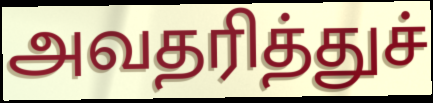
அவதரித்துச்